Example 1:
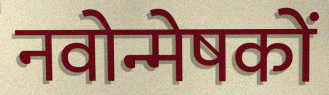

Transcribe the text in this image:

नवोन्मेषकों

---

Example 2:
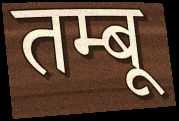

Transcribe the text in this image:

तम्बू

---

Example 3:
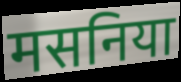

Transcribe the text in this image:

मसनिया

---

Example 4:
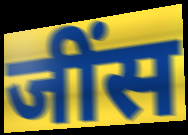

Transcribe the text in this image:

जींस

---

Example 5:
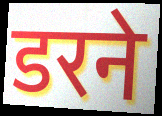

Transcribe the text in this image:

डरने